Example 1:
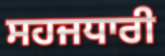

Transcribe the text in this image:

ਸਹਜਧਾਰੀ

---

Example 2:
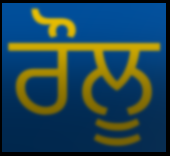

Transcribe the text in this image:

ਰੌਲੂ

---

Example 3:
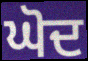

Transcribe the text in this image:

ਘੋਦ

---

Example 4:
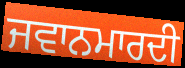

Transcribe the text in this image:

ਜਵਾਨਮਾਰਦੀ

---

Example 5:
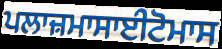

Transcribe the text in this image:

ਪਲਾਜ਼ਮਾਸਾਈਟੋਮਾਸ